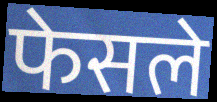
फेसले